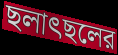
ছলাৎছলের